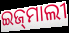
ଇଜ୍‌ମାଲୀ